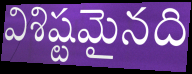
విశిష్టమైనది